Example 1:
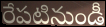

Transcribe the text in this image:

రేపటినుండీ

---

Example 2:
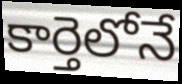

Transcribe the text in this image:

కార్తెలోనే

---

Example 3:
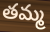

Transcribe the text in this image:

తమ్మ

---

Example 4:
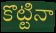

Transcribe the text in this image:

కొట్టినా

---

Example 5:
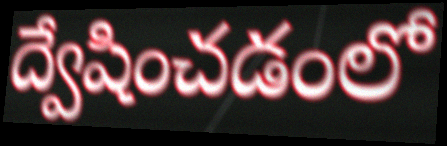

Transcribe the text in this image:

ద్వేషించడంలో